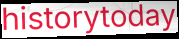
historytoday